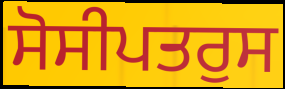
ਸੋਸੀਪਤਰੁਸ